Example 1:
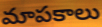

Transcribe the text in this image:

మాపకాలు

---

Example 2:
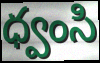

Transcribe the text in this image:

ధ్వంసి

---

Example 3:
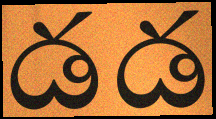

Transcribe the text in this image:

డడ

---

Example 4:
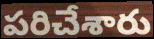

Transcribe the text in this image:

పరిచేశారు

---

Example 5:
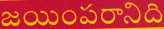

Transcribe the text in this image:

జయింపరానిది